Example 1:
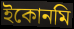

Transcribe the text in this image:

ইকোনমি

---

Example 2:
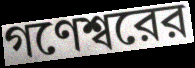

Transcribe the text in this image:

গণেশ্বরের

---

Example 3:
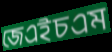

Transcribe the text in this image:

জেএইচএম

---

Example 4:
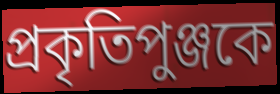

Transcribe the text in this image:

প্রকৃতিপুঞ্জকে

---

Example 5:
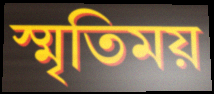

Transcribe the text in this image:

স্মৃতিময়